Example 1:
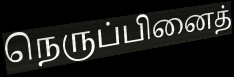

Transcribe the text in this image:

நெருப்பினைத்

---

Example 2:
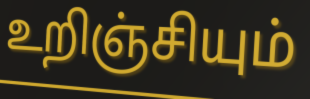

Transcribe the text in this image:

உறிஞ்சியும்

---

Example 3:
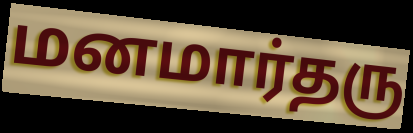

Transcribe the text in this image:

மனமார்தரு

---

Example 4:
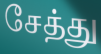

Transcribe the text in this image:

சேத்து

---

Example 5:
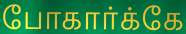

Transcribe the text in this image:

போகார்க்கே